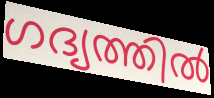
ഗദ്യത്തിൽ